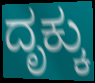
ದೃಕ್ಕು